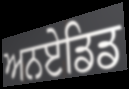
ਅਨਏਡਿਡ